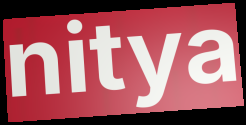
nitya